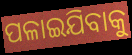
ପଳାଇଯିବାକୁ